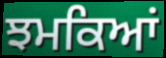
ਝਮਕਿਆਂ